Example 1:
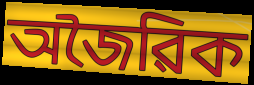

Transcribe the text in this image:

অজৈৱিক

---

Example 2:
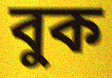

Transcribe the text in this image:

বুক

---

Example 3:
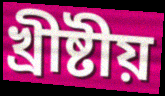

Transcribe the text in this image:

খ্ৰীষ্টীয়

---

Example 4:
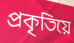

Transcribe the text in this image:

প্ৰকৃতিয়ে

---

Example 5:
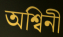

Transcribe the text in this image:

অশ্বিনী